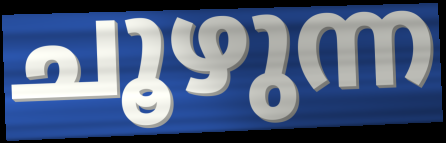
ചൂഴുന്ന